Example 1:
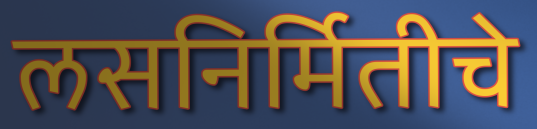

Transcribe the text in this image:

लसनिर्मितीचे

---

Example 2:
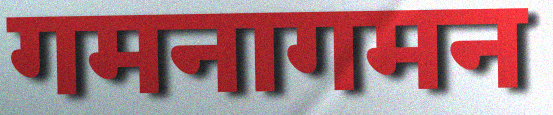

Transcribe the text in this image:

गमनागमन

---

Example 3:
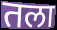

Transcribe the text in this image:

तला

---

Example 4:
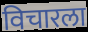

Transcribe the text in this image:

विचारला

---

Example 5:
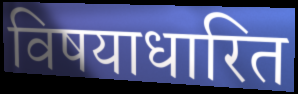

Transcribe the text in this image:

विषयाधारित